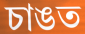
চাঙত